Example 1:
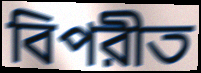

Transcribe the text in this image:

বিপরীত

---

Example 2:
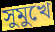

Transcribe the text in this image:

সুমুখে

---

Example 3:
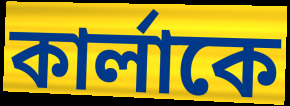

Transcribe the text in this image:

কার্লাকে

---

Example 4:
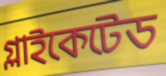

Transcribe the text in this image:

গ্লাইকেটেড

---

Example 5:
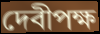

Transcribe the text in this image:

দেবীপক্ষ